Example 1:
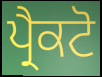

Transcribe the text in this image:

ਪ੍ਰੈਕਟੋ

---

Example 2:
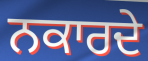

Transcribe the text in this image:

ਨਕਾਰਦੇ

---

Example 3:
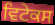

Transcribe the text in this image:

ਵਿਟੇਕਸ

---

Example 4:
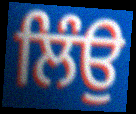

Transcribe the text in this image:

ਲਿੰਉ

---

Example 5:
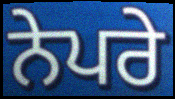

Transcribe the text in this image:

ਨੇਪਰੇ